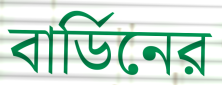
বার্ডিনের